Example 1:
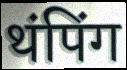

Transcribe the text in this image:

थंपिंग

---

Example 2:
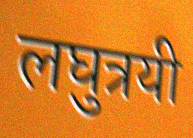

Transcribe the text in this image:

लघुत्रयी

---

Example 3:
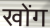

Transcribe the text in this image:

खोंग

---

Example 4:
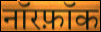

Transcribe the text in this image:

नॉरफ़ॉक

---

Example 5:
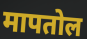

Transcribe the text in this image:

मापतोल